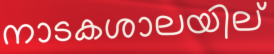
നാടകശാലയില്